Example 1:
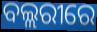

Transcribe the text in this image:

ବଲ୍ଲରୀରେ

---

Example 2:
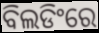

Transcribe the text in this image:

ବିଲଡିଂରେ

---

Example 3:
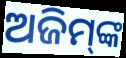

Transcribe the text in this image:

ଅଜିମ୍‌ଙ୍କ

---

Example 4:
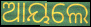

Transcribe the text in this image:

ଆୟଲେ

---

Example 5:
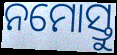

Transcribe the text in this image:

ନମୋସ୍ତୁ